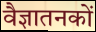
वैज्ञातनकों